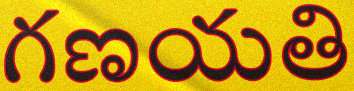
గణయతి